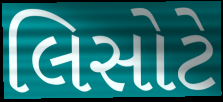
લિસોટે